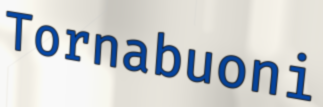
Tornabuoni